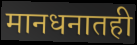
मानधनातही